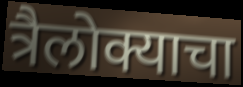
त्रैलोक्याचा